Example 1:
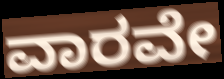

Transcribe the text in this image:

ವಾರವೇ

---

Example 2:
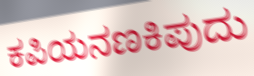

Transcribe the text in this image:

ಕಪಿಯನಣಕಿಪುದು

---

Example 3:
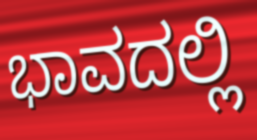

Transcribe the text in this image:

ಭಾವದಲ್ಲಿ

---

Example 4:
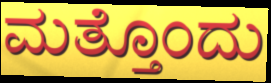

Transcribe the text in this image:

ಮತ್ತೊಂದು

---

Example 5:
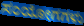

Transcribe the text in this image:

ಸಂಯೋಗಗಳು